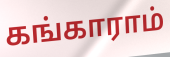
கங்காராம்